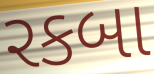
રકબા